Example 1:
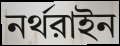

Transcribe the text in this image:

নর্থরাইন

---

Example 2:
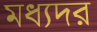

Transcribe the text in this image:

মধ্যদর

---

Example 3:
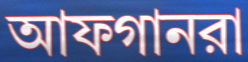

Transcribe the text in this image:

আফগানরা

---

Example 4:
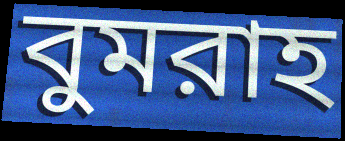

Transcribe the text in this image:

বুমরাহ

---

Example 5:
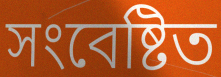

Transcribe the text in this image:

সংবেষ্টিত